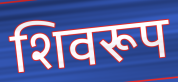
शिवरूप